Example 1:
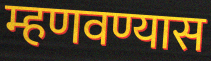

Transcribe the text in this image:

म्हणवण्यास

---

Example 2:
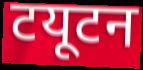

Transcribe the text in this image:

टयूटन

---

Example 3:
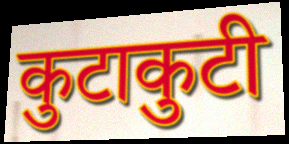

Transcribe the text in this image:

कुटाकुटी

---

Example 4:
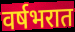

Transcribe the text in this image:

वर्षभरात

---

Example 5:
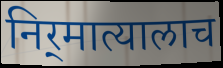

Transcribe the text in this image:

निर्मात्यालाच